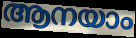
ആനയാം